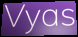
Vyas